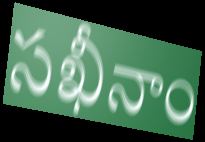
సఖీనాం